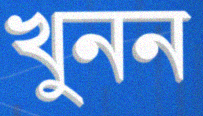
খুনন